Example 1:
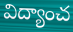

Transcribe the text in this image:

విద్యాంచ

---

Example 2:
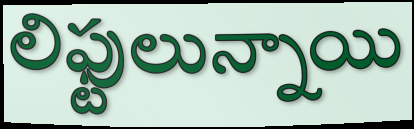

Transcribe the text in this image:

లిఫ్టులున్నాయి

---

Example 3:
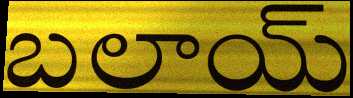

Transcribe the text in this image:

బలాయ్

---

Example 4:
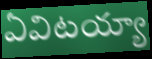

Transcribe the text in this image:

ఏవిటయ్యా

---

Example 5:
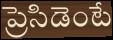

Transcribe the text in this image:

ప్రెసిడెంటే